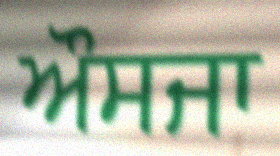
ਔਸਜਾ